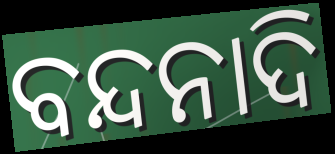
ବନ୍ଦନାଦି